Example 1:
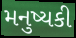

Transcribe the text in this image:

મનુષ્યકી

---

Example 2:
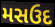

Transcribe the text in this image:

મસઉદ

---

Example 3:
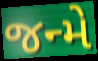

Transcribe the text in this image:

જન્મે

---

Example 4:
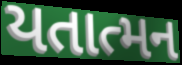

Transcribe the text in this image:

યતાત્મન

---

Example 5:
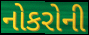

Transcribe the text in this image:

નોકરોની